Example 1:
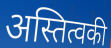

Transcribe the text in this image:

अस्तित्वकी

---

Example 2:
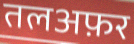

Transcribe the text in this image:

तलअफ़र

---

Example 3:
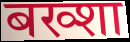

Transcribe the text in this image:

बख्शा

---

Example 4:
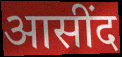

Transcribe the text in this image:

आसींद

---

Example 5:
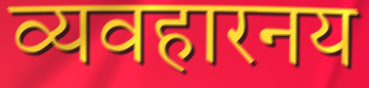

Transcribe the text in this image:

व्यवहारनय